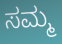
ಸಮ್ಮ